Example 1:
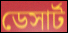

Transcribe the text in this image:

ডেসার্ট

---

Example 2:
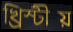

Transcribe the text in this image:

খ্রিস্টীয়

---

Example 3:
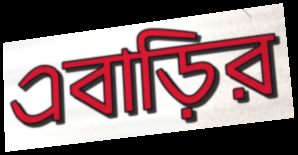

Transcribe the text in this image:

এবাড়ির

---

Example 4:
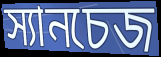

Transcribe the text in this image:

স্যানচেজ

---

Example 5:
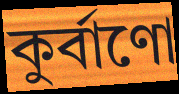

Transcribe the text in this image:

কুর্বাণো